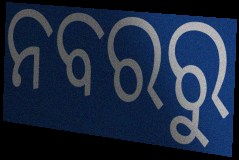
ନବରରୁ